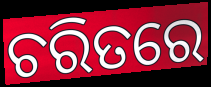
ଚରିତରେ